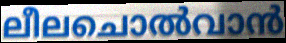
ലീലചൊൽവാൻ